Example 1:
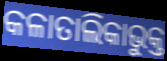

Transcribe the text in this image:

କଳାତାଲିକାଭୁକ୍ତ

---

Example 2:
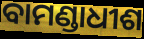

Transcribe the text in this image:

ବାମଣ୍ଡାଧୀଶ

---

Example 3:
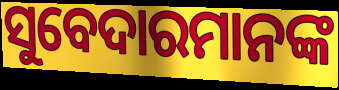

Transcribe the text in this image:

ସୁବେଦାରମାନଙ୍କ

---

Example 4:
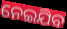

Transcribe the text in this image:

ନେଇଯିବ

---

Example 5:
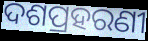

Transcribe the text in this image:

ଦଶପ୍ରହରଣୀ